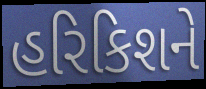
હરિકિશને